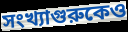
সংখ্যাগুরুকেও